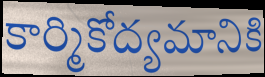
కార్మికోద్యమానికి